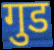
गुड